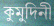
কুমুদিনী